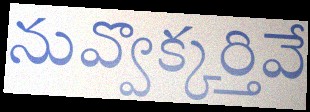
నువ్వొక్కర్తివే